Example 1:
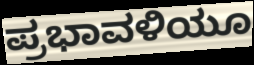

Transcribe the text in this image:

ಪ್ರಭಾವಳಿಯೂ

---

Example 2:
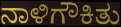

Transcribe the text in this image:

ನಾಳಿಗೌಕಿತು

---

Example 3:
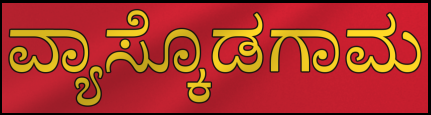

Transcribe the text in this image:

ವ್ಯಾಸ್ಕೊಡಗಾಮ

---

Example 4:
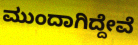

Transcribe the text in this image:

ಮುಂದಾಗಿದ್ದೇವೆ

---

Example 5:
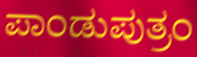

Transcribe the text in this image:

ಪಾಂಡುಪುತ್ರಂ